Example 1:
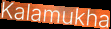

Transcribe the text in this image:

Kalamukha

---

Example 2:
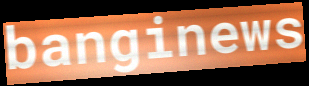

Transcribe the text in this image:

banginews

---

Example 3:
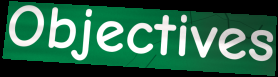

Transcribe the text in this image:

Objectives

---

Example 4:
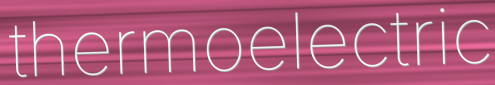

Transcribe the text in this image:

thermoelectric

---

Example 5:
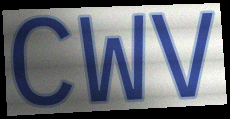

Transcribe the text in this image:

CWV